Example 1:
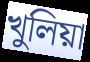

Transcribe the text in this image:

খুলিয়া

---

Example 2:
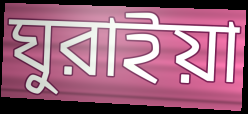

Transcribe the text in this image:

ঘুরাইয়া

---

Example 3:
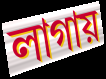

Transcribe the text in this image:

লাগায়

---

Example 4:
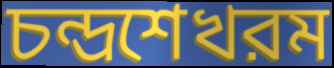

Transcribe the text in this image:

চন্দ্রশেখরম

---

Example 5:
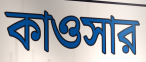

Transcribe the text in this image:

কাওসার